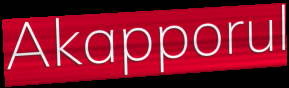
Akapporul